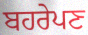
ਬਹਰੇਪਣ